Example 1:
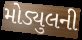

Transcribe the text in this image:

મોડ્યુલની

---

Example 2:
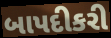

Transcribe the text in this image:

બાપદીકરી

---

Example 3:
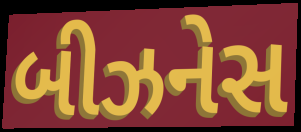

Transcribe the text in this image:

બીઝનેસ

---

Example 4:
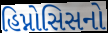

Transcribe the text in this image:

હિપ્નોસિસનો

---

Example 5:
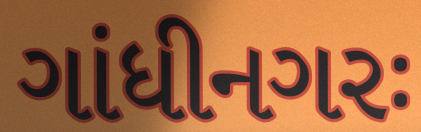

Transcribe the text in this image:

ગાંધીનગરઃ